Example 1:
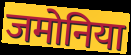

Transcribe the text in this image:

जमोनिया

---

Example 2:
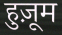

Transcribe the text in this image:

हुज़ूम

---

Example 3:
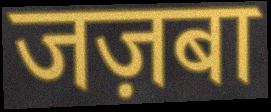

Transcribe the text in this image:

जज़बा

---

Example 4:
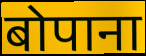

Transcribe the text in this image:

बोपाना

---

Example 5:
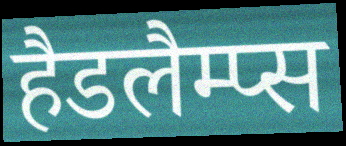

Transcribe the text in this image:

हैडलैम्प्स